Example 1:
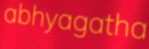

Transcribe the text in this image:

abhyagatha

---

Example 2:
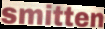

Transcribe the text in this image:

smitten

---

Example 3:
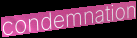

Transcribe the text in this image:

condemnation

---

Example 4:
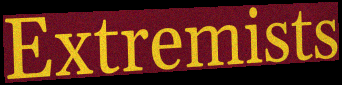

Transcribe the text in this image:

Extremists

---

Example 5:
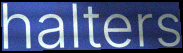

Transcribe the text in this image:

halters